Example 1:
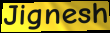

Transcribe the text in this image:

Jignesh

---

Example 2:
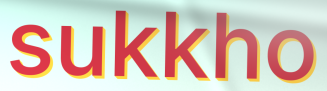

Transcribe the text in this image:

sukkho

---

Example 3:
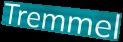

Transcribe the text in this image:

Tremmel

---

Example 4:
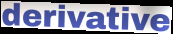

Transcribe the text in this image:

derivative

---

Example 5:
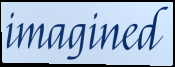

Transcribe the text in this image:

imagined